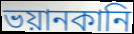
ভয়ানকানি